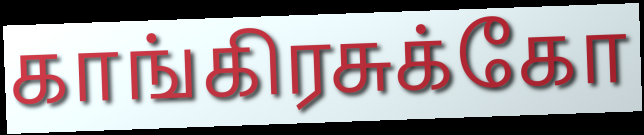
காங்கிரசுக்கோ